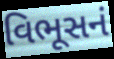
વિભૂસનં